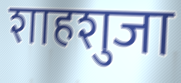
शाहशुजा